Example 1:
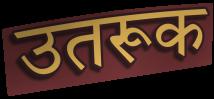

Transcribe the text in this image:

उतरूक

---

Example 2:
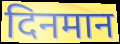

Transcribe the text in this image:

दिनमान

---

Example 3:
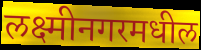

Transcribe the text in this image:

लक्ष्मीनगरमधील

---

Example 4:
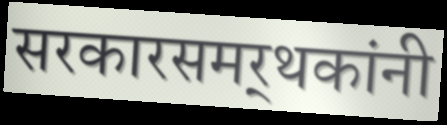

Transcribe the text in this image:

सरकारसमर्थकांनी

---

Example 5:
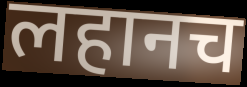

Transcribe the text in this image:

लहानच